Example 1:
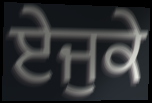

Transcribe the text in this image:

ਏਜੁਕੇ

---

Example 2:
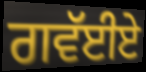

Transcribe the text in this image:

ਗਵੱਈਏ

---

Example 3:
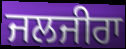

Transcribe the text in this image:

ਜਲਜੀਰਾ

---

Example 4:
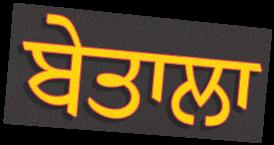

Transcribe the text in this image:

ਬੇਤਾਲਾ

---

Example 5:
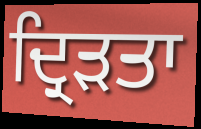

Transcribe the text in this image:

ਦ੍ਰਿੜਤਾ